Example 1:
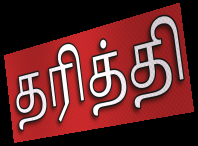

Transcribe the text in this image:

தரித்தி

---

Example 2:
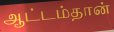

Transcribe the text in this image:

ஆட்டம்தான்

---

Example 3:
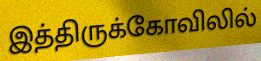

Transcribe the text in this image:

இத்திருக்கோவிலில்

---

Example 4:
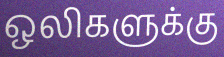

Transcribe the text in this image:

ஒலிகளுக்கு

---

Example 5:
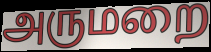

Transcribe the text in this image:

அருமறை